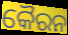
କୈରନ